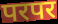
परपर